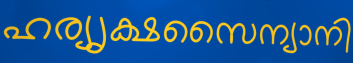
ഹര്യൃക്ഷസൈന്യാനി